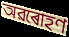
অৱৰোহণ